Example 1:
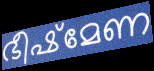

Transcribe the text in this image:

ഭീഷ്മേണ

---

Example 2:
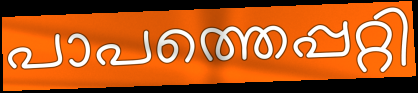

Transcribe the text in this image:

പാപത്തെപ്പറ്റി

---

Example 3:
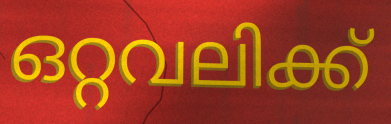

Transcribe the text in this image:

ഒറ്റവലിക്ക്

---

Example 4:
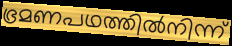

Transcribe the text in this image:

ഭ്രമണപഥത്തിൽനിന്ന്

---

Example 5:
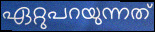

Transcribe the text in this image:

ഏറ്റുപറയുന്നത്